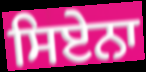
ਸਿਏਨਾ